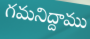
గమనిద్దాము